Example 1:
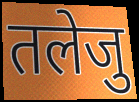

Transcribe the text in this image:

तलेजु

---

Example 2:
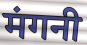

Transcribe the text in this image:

मंगनी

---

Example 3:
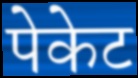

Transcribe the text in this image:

पेकेट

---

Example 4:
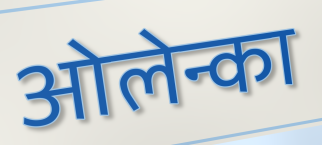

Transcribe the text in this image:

ओलेन्का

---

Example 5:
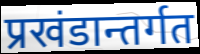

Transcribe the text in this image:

प्रखंडान्तर्गत